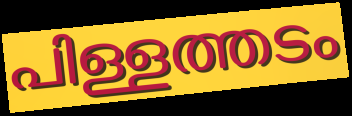
പിള്ളത്തടം